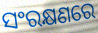
ସଂରକ୍ଷଣରେ